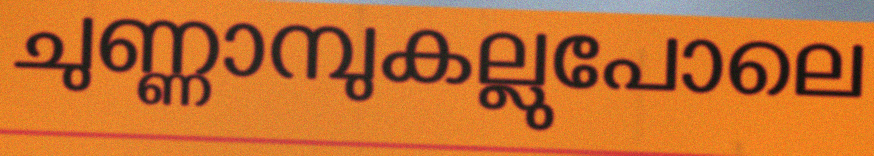
ചുണ്ണാമ്പുകല്ലുപോലെ